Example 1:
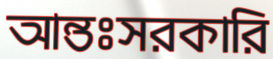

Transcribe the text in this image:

আন্তঃসরকারি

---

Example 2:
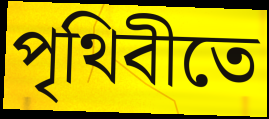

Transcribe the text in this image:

পৃথিবীতে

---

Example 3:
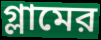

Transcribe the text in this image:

গ্লামের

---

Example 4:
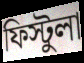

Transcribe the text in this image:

ফিস্টুলা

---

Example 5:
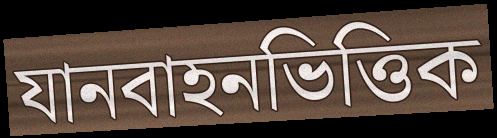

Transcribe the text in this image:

যানবাহনভিত্তিক